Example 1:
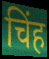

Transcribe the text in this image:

चिंह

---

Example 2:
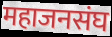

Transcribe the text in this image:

महाजनसंघ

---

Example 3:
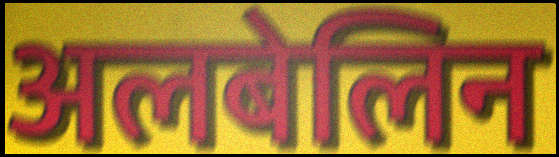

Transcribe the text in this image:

अलबेलिन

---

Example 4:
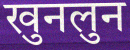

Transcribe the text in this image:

खुनलुन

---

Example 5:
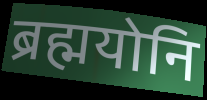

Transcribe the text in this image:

ब्रह्मयोनि